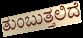
ತುಂಬುತ್ತಲಿದೆ